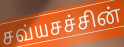
சவ்யசச்சின்